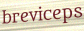
breviceps